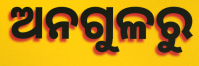
ଅନଗୁଳରୁ